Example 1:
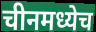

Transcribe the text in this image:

चीनमध्येच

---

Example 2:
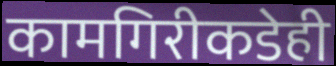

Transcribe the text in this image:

कामगिरीकडेही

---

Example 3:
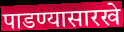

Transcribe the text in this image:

पाडण्यासारखे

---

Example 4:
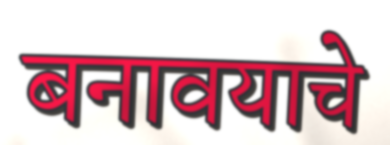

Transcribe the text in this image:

बनावयाचे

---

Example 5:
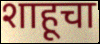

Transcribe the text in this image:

शाहूचा